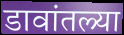
डावांतल्या